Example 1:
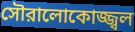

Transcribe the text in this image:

সৌরালোকোজ্জ্বল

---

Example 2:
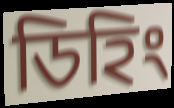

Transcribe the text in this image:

ডিহিং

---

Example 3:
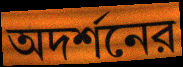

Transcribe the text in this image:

অদর্শনের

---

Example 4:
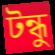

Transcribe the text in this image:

টন্ধু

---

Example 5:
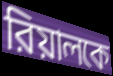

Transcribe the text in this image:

রিয়ালকে